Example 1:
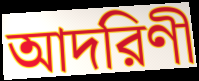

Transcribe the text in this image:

আদরিণী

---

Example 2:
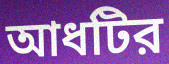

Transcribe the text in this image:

আধটির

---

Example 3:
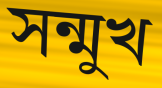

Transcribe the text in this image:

সন্মুখ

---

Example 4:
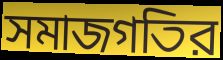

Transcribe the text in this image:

সমাজগতির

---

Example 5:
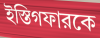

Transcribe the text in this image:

ইস্তিগফারকে